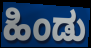
ಹಿಂಡು